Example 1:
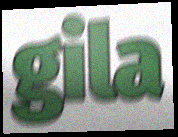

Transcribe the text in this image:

gila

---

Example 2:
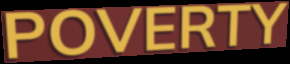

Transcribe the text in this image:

POVERTY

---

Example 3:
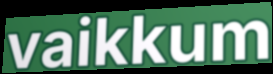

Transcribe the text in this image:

vaikkum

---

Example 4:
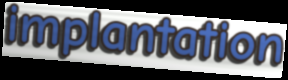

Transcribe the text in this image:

implantation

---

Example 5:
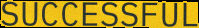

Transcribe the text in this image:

SUCCESSFUL